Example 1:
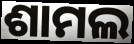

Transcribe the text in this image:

ଶାମଲ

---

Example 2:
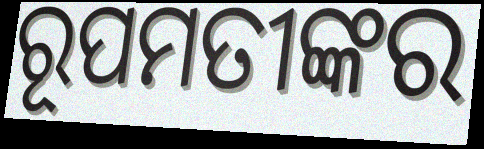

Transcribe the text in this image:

ରୂପମତୀଙ୍କର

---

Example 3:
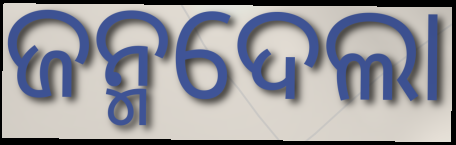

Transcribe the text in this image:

ଜନ୍ମଦେଲା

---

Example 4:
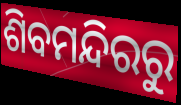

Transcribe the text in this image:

ଶିବମନ୍ଦିରରୁ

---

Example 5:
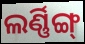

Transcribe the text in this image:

ଲର୍ଣ୍ଣିଙ୍ଗ୍